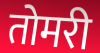
तोमरी